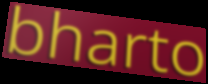
bharto